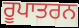
ਰੂਪਾਤਰਨ